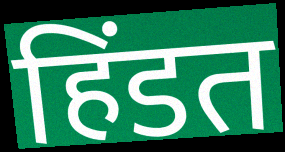
हिंडत